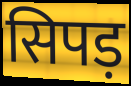
सिपड़